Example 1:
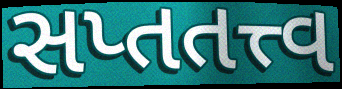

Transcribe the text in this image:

સપ્તતત્ત્વ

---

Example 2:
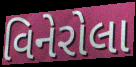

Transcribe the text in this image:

વિનેરોલા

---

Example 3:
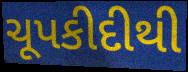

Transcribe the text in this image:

ચૂપકીદીથી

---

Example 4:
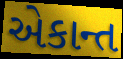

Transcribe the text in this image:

એકાન્ત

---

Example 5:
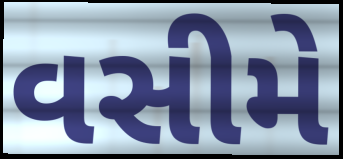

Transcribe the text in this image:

વસીમે